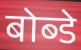
बोब्डे